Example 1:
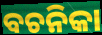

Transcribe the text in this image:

ବଚନିକା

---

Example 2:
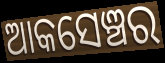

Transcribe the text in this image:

ଆକସେଞ୍ଚର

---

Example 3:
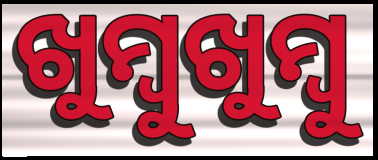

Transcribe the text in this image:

ଖୁମ୍ୱୁଖୁମ୍ବୁ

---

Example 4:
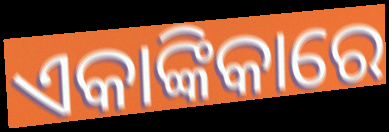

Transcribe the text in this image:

ଏକାଙ୍କିକାରେ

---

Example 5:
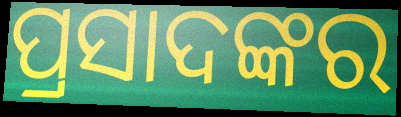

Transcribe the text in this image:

ପ୍ରସାଦଙ୍କର